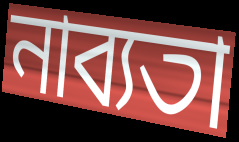
নাব্যতা